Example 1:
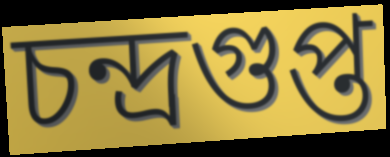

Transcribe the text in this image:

চন্দ্ৰগুপ্ত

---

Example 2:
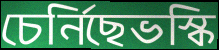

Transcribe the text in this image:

চেৰ্নিছেভস্কি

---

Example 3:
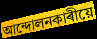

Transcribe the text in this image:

আন্দোলনকাৰীয়ে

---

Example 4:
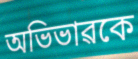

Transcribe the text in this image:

অভিভাৱকে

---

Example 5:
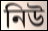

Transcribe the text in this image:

নিউ